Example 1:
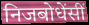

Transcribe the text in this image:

निजबोधेंसीं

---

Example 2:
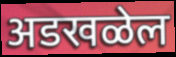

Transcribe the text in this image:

अडखळेल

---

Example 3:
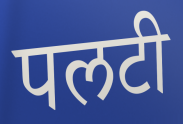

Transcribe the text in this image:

पलटी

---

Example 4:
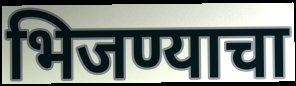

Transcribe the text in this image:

भिजण्याचा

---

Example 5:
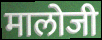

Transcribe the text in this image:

मालोजी